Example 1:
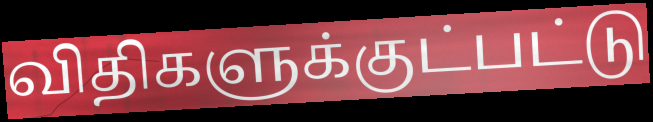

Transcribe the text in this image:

விதிகளுக்குட்பட்டு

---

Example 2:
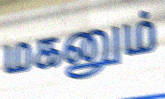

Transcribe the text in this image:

மகனும்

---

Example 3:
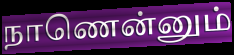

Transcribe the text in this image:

நாணென்னும்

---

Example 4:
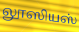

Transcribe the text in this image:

லூஸியஸ்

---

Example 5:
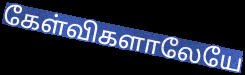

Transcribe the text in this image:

கேள்விகளாலேயே